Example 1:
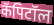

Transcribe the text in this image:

कॅपिटॉल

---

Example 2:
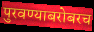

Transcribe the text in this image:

पुरवण्याबरोबरच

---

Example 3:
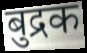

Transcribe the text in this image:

बुद्रक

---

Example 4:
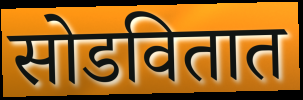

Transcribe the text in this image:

सोडवितात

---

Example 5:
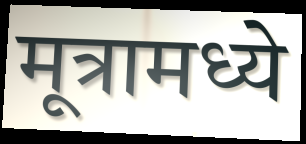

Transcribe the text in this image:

मूत्रामध्ये